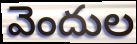
వెందుల